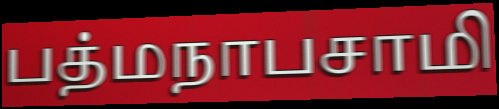
பத்மநாபசாமி